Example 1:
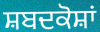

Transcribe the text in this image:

ਸ਼ਬਦਕੋਸ਼ਾਂ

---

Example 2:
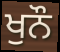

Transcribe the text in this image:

ਖੁਨੌ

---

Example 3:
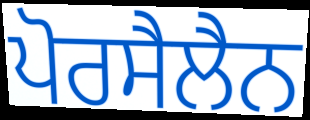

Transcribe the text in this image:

ਪੋਰਸੈਲੈਨ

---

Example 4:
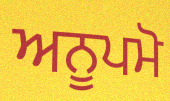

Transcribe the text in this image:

ਅਨੂਪਮੋ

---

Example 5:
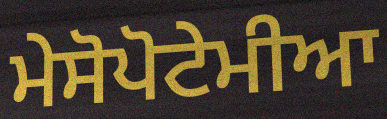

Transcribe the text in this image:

ਮੇਸੋਪੋਟੇਮੀਆ